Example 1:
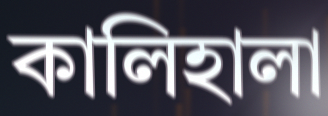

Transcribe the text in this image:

কালিহালা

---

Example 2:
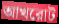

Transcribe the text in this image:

আখরোট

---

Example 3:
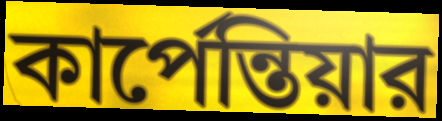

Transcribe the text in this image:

কার্পেন্তিয়ার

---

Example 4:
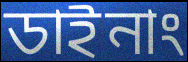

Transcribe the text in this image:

ডাইনাং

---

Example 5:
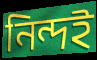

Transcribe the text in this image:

নিন্দই